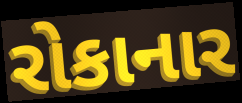
રોકાનાર